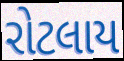
રોટલાય